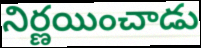
నిర్ణయించాడు